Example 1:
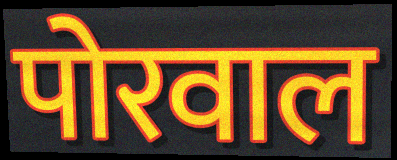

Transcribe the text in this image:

पोरवाल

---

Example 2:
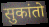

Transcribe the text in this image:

सुकांतो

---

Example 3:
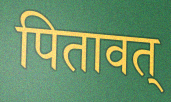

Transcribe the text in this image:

पितावत्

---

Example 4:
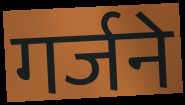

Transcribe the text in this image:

गर्जने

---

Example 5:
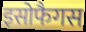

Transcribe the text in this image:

इसोफैगस